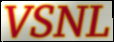
VSNL